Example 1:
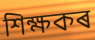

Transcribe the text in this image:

শিক্ষকৰ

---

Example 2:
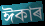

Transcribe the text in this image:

ঈকাৰ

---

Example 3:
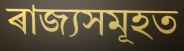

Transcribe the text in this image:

ৰাজ্যসমূহত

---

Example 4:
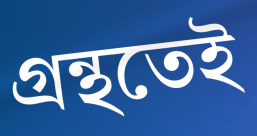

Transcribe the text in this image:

গ্ৰন্থতেই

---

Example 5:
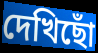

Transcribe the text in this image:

দেখিছোঁ